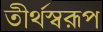
তীর্থস্বরূপ